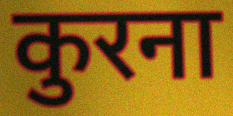
कुरना